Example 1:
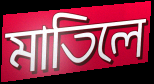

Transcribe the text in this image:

মাতিলে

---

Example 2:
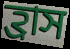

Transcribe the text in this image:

হ্ৰাস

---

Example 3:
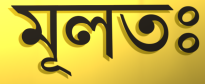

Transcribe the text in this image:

মূলতঃ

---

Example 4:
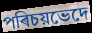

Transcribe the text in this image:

পৰিচয়ভেদে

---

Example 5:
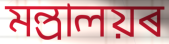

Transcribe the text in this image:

মন্ত্ৰালয়ৰ